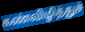
கண்விழித்துச்